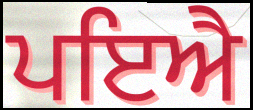
ਪਇਐ